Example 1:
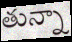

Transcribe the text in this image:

తున్నా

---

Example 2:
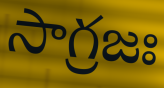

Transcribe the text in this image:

సాగ్రజః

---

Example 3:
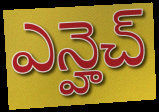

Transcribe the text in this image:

ఎన్హెచ్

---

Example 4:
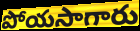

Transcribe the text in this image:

పోయసాగారు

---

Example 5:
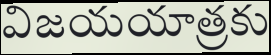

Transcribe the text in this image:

విజయయాత్రకు